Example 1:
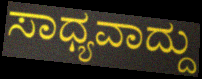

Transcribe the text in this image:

ಸಾಧ್ಯವಾದ್ದು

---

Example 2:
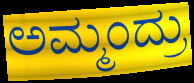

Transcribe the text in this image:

ಅಮ್ಮಂದ್ರು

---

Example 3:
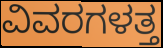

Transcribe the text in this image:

ವಿವರಗಳತ್ತ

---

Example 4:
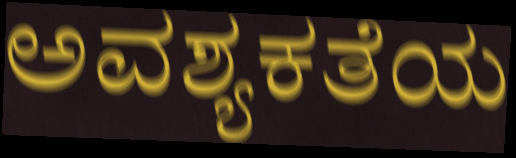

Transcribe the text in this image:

ಅವಶ್ಯಕತೆಯ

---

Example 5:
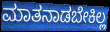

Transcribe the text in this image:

ಮಾತನಾಡಬೇಕಿಲ್ಲ